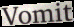
Vomit